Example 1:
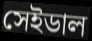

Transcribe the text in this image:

সেইডাল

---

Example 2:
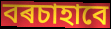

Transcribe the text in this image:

বৰচাহাবে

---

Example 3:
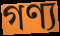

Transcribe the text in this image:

গণ্য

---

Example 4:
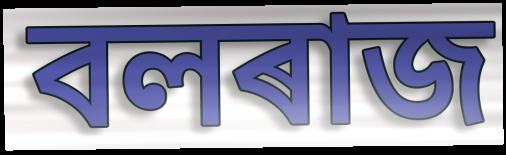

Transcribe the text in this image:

বলৰাজ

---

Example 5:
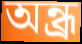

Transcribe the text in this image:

অন্ধ্ৰ